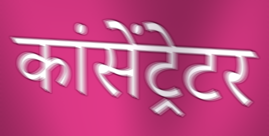
कांसेंट्रेटर